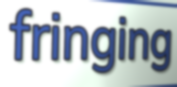
fringing